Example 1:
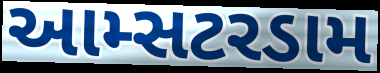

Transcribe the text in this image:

આમ્સટરડામ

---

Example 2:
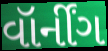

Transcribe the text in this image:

વૉર્નીંગ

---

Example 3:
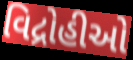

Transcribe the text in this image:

વિદ્રોહીઓ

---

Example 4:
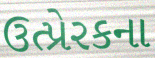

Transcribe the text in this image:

ઉત્પ્રેરકના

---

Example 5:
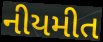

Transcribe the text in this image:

નીયમીત